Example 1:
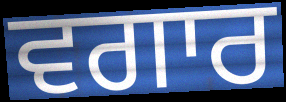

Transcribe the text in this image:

ਵਗਾਰ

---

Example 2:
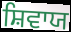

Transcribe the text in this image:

ਸ਼ਿਵਾਯ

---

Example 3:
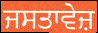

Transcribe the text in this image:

ਜਸਤਾਵੇਜ਼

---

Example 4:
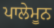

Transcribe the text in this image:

ਪਾਲੇਮੂਨ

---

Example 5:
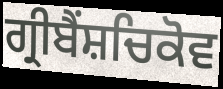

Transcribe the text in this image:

ਗ੍ਰੀਬੈਂਸ਼ਚਿਕੋਵ